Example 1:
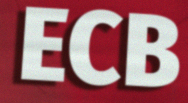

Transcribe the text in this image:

ECB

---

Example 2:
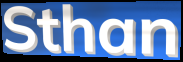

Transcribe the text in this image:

Sthan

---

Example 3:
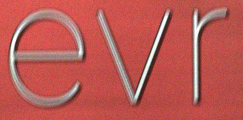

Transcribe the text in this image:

evr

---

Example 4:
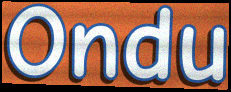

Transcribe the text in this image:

Ondu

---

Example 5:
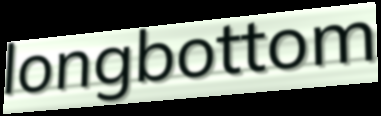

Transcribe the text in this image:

longbottom